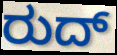
ರುದ್